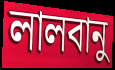
লালবানু